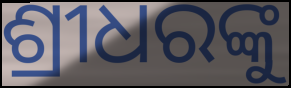
ଶ୍ରୀଧରଙ୍କୁ